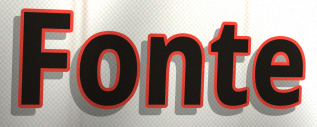
Fonte